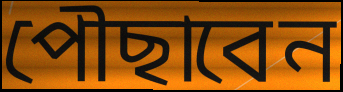
পৌছাবেন